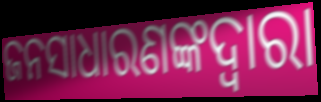
ଜନସାଧାରଣଙ୍କଦ୍ବାରା